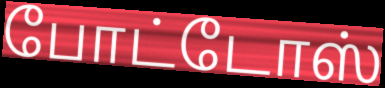
போட்டோஸ்